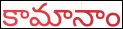
కామానాం